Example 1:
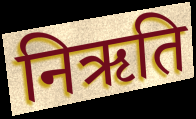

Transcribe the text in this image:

निऋति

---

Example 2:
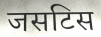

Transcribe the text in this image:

जसटिस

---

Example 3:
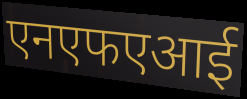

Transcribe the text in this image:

एनएफएआई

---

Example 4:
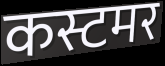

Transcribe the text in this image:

कस्‍टमर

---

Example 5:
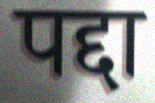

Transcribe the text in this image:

पद्दा